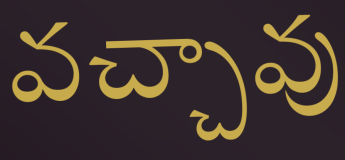
వచ్చావు